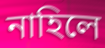
নাহিলে